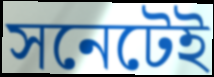
সনেটেই